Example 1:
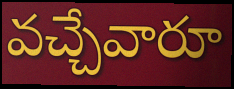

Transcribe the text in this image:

వచ్చేవారూ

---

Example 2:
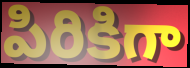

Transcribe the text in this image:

పిరికిగా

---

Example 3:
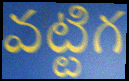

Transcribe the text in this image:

వట్టిగ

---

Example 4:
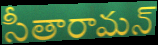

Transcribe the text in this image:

సీతారామన్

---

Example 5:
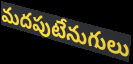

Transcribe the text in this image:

మదపుటేనుగులు